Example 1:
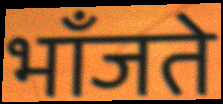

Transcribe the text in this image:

भाँजते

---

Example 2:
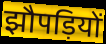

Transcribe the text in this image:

झौपड़ियों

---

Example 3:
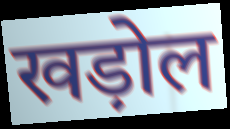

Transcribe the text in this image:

खड़ोल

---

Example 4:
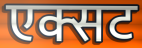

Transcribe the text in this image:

एक्सट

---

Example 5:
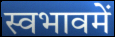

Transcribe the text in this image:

स्वभावमें